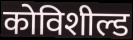
कोविशील्ड